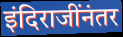
इंदिराजींनंतर